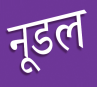
नूडल